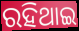
ରହିଥାଇ